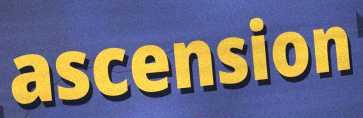
ascension